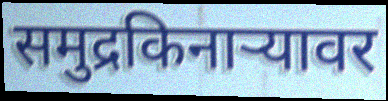
समुद्रकिनाऱ्यावर